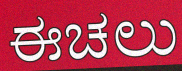
ಈಚಲು